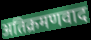
अतिक्रमणवाद